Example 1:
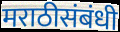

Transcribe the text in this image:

मराठीसंबंधी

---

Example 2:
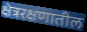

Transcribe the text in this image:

क्षेत्ररक्षणातील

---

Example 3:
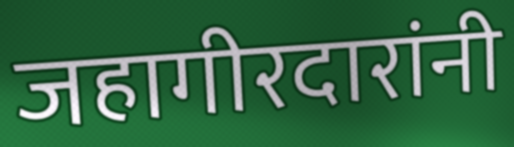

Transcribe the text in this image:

जहागीरदारांनी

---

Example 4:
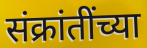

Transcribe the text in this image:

संक्रांतींच्या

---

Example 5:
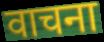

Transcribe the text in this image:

वाचना